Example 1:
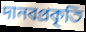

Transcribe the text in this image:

দানবপ্রকৃতি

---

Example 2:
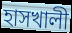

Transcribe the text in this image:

হাসখালী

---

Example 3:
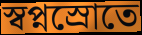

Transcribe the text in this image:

স্বপ্নস্রোতে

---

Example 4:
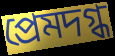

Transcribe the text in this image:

প্রেমদগ্ধ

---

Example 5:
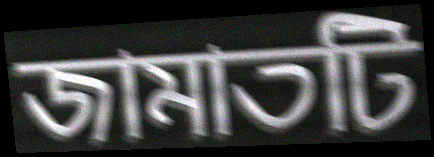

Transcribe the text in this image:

জামাতটি